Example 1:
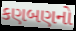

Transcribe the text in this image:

કણબણનો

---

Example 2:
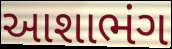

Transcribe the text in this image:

આશાભંગ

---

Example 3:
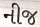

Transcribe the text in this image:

નીજ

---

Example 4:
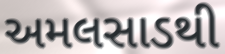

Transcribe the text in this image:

અમલસાડથી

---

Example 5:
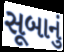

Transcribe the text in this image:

સૂબાનું